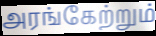
அரங்கேற்றும்